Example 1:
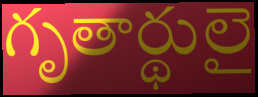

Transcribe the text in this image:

గృతార్థులై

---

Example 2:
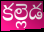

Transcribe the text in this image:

కల్లెడ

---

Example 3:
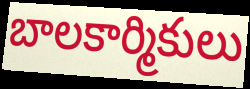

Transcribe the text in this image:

బాలకార్మికులు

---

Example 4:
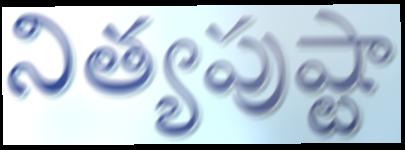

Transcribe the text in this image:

నిత్యపుష్టా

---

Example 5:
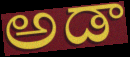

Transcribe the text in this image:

అడా